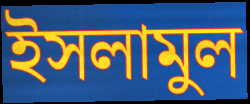
ইসলামুল